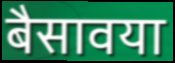
बैसावया